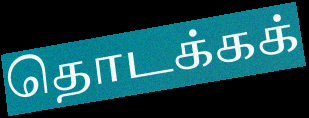
தொடக்கக்